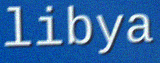
libya